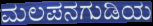
ಮಲಪನಗುಡಿಯ